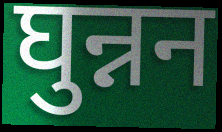
घुन्नन